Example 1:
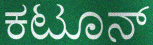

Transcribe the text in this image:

ಕಟೂನ್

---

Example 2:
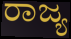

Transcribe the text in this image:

ರಾಜ್ಯ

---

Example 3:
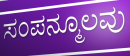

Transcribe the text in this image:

ಸಂಪನ್ಮೂಲವು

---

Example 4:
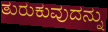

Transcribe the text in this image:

ತುರುಕುವುದನ್ನು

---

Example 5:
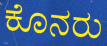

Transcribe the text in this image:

ಕೊನರು